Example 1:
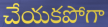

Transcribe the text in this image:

చేయకపోగా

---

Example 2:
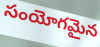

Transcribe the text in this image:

సంయోగమైన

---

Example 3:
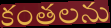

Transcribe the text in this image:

కంతలను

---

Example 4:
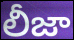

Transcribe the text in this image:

లీజా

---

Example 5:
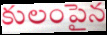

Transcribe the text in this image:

కులంపైన